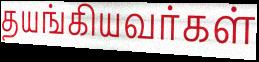
தயங்கியவர்கள்